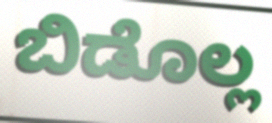
ಬಿಡೊಲ್ಲ